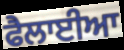
ਫੈਲਾਈਆ